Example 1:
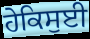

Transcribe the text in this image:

ਹੇਕਿਸੁਈ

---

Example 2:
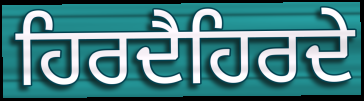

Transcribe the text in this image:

ਹਿਰਦੈਹਿਰਦੇ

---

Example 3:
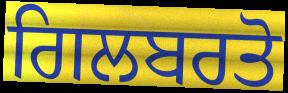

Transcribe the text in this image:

ਗਿਲਬਰਤੋ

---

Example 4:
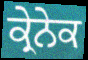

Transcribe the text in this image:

ਕ੍ਰੇਨੇਕ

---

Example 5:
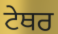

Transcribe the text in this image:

ਟੇਥਰ